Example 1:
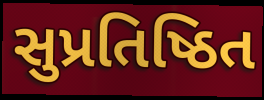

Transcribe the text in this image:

સુપ્રતિષ્ઠિત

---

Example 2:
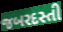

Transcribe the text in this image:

જબરદસ્તી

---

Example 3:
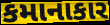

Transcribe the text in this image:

કમાનાકાર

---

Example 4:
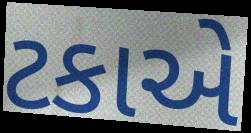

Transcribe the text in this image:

ટકાએ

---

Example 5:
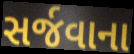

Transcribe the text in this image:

સર્જવાના